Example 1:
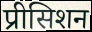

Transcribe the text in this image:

प्रीसिशन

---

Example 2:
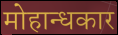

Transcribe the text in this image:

मोहान्धकार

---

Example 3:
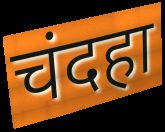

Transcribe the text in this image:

चंदहा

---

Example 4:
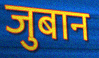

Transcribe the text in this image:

जुबान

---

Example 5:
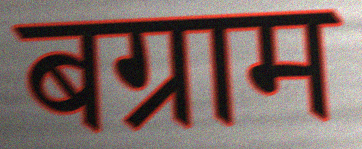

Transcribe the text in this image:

बग्राम